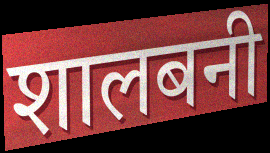
शालबनी